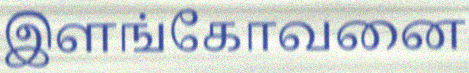
இளங்கோவனை